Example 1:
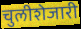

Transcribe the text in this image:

चुलीशेजारी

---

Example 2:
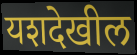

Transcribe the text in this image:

यशदेखील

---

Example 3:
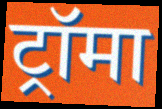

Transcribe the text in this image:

ट्रॉमा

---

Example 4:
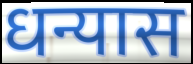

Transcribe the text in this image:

धन्यास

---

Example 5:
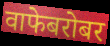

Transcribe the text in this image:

वाफेबरोबर